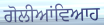
ਗੋਲੀਆਂਵਿਆਹ